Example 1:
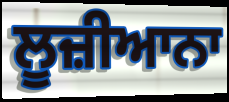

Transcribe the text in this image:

ਲੂਜ਼ੀਆਨਾ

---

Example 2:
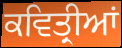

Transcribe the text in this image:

ਕਵਿਤ੍ਰੀਆਂ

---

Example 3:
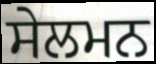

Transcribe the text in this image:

ਸੇਲਮਨ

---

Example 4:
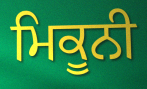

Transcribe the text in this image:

ਮਿਕੂਨੀ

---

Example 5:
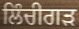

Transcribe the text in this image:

ਲਿੰਚੀਗੜ